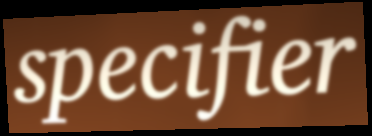
specifier